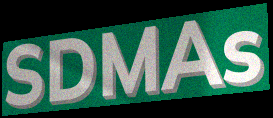
SDMAs